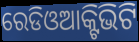
ରେଡିଓଆକ୍ଟିଭିଟି